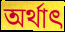
অৰ্থাৎ